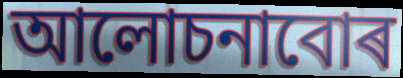
আলোচনাবোৰ